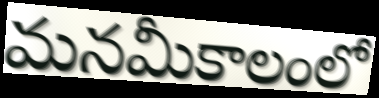
మనమీకాలంలో